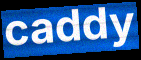
caddy